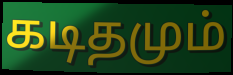
கடிதமும்